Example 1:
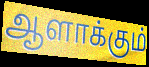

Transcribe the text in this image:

ஆளாக்கும்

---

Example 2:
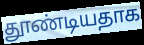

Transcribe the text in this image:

தூண்டியதாக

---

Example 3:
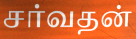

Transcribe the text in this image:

சர்வதன்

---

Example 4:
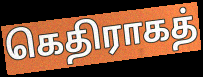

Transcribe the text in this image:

கெதிராகத்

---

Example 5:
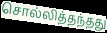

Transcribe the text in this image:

சொல்லித்தந்தது